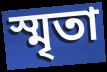
স্মৃতা